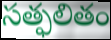
సత్ఫలితం